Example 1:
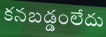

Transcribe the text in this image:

కనబడ్డంలేదు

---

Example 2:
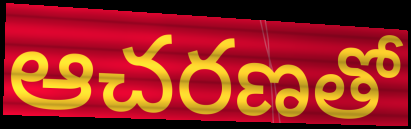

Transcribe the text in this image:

ఆచరణతో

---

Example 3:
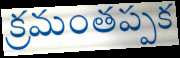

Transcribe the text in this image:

క్రమంతప్పక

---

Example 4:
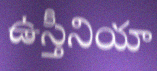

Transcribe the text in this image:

ఉస్తీనియా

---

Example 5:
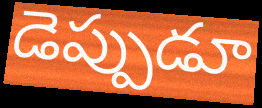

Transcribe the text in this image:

డెప్పుడూ